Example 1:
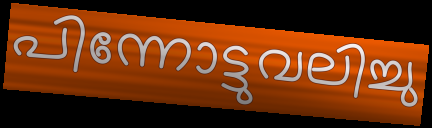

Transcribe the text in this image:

പിന്നോട്ടുവലിച്ചു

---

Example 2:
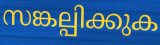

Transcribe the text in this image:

സങ്കല്പിക്കുക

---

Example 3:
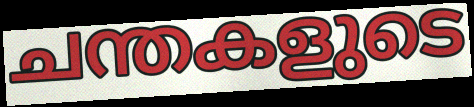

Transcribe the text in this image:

ചന്തകളുടെ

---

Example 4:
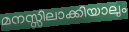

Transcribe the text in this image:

മനസ്സിലാക്കിയാലും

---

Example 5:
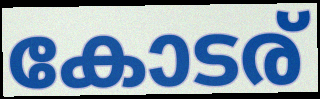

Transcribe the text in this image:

കോടര്